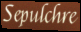
Sepulchre